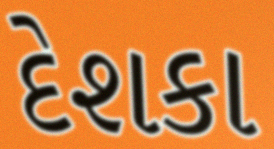
દેશકા